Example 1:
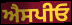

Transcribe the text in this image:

ਐਸਪੀਓ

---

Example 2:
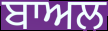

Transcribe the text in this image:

ਬਾਅਲ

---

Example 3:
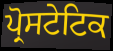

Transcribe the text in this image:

ਪ੍ਰੋਸਟੇਟਿਕ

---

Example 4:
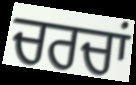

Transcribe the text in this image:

ਚਰਚਾਂ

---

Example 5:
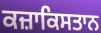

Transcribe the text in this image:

ਕਜ਼ਾਕਿਸਤਾਨ